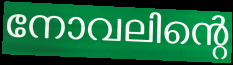
നോവലിന്റെ